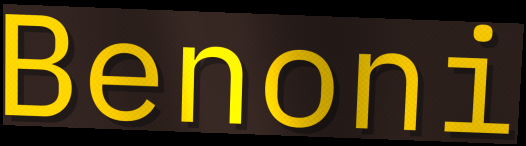
Benoni